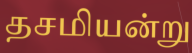
தசமியன்று